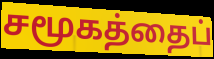
சமூகத்தைப்